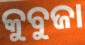
କୁବୁଜା